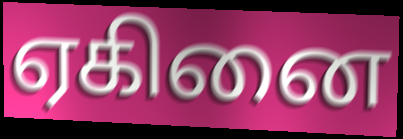
ஏகினை